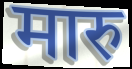
मारु